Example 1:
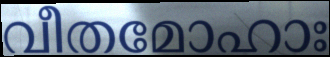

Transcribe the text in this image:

വീതമോഹാഃ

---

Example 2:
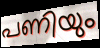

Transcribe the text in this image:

പണിയും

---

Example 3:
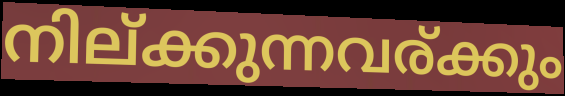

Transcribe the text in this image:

നില്ക്കുന്നവര്ക്കും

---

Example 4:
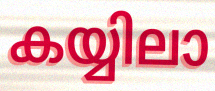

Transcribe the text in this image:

കയ്യിലാ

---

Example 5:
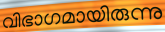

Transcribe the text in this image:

വിഭാഗമായിരുന്നു